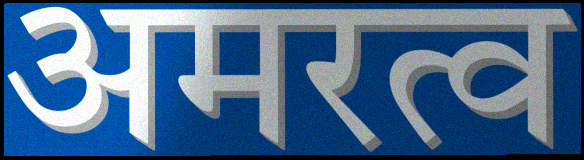
अमरत्व